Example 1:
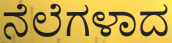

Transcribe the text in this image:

ನೆಲೆಗಳಾದ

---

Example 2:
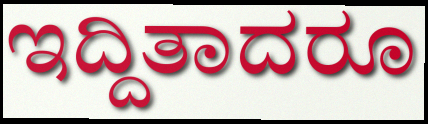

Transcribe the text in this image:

ಇದ್ದಿತಾದರೂ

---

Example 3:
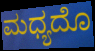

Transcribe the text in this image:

ಮಧ್ಯದೊ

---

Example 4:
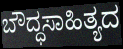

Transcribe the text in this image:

ಬೌದ್ಧಸಾಹಿತ್ಯದ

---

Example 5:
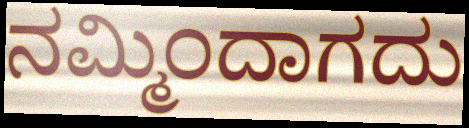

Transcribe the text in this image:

ನಮ್ಮಿಂದಾಗದು